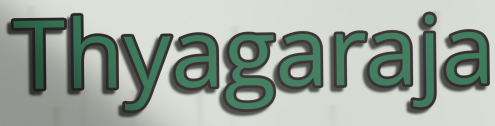
Thyagaraja